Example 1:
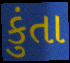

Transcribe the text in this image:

કુંતા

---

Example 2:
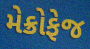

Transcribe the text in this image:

મેક્રોફેજ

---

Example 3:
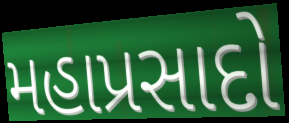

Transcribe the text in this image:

મહાપ્રસાદો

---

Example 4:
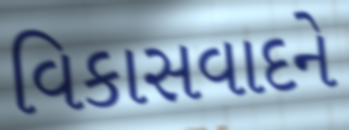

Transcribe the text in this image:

વિકાસવાદને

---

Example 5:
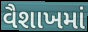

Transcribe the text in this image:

વૈશાખમાં